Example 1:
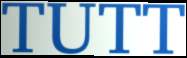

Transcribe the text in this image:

TUTT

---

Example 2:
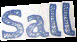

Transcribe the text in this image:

Sall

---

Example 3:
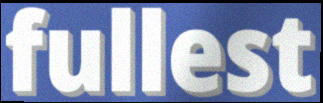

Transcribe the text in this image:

fullest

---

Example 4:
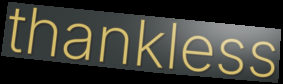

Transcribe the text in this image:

thankless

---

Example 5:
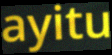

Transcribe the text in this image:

ayitu